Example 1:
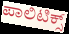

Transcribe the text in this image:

ಪಾಲಿಟಿಕ್ಸ್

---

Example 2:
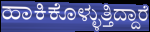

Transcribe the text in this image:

ಹಾಕಿಕೊಳ್ಳುತ್ತಿದ್ದಾರೆ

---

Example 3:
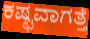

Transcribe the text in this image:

ಕಷ್ಟವಾಗತ್ತೆ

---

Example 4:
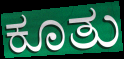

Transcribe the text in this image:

ಕೂತು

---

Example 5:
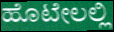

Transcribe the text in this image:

ಹೊಟೇಲಲ್ಲಿ